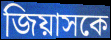
জিয়াসকে